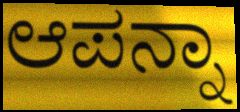
ಆಪನ್ನಾ